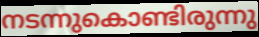
നടന്നുകൊണ്ടിരുന്നു